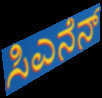
ಸಿಎನೆನ್